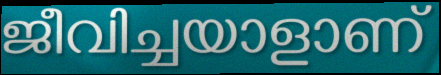
ജീവിച്ചയാളാണ്